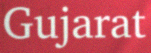
Gujarat